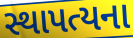
સ્થાપત્યના